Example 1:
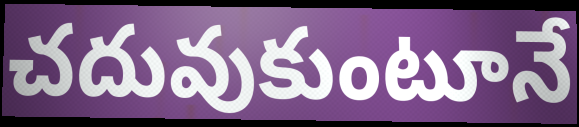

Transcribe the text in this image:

చదువుకుంటూనే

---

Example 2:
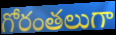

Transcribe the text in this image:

గోరంతలుగా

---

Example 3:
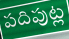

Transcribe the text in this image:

పదిపుట్ల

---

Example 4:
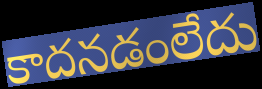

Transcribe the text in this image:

కాదనడంలేదు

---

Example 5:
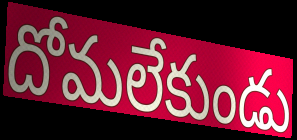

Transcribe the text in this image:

దోమలేకుండు